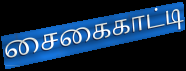
சைகைகாட்டி